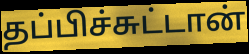
தப்பிச்சுட்டான்